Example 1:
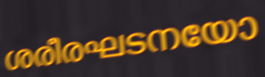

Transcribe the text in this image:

ശരീരഘടനയോ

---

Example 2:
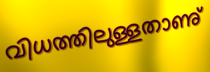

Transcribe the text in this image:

വിധത്തിലുള്ളതാണു്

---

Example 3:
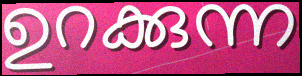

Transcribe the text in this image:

ഉറക്കുന്ന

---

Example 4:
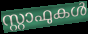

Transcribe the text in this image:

സ്റ്റാഫുകൾ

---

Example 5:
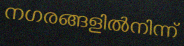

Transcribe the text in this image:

നഗരങ്ങളിൽനിന്ന്